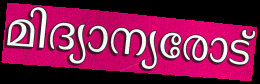
മിദ്യാന്യരോട്